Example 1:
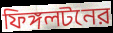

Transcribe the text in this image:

ফিঙ্গলটনের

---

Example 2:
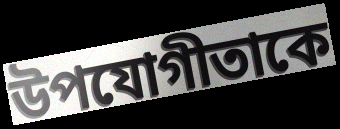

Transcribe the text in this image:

উপযোগীতাকে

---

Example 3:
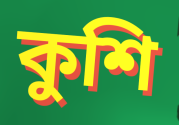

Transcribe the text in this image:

কুশি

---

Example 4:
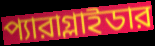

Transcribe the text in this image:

প্যারাগ্লাইডার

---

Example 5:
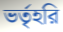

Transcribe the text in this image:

ভর্তৃহরি